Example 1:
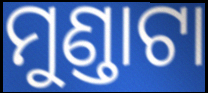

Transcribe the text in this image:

ମୁଣ୍ଡାଟା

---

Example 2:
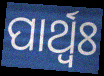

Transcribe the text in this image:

ପାର୍ଥ୍ବଃ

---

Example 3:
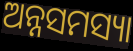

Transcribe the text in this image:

ଅନ୍ନସମସ୍ୟା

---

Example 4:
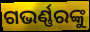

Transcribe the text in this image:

ଗଭର୍ଣ୍ଣରଙ୍କୁ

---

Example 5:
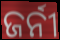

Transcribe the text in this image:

ଜର୍ନୀ